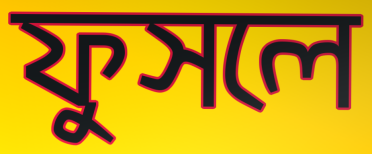
ফুসলে